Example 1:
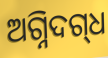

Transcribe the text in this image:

ଅଗ୍ନିଦଗ୍‌ଧ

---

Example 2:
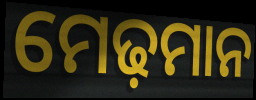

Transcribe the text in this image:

ମେଢ଼ମାନ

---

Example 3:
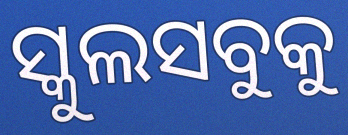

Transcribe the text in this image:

ସ୍କୁଲସବୁକୁ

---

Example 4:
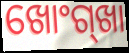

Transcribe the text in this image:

ଖୋଂଗ୍‍ଖା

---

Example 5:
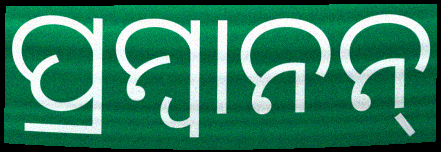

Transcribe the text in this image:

ପ୍ରମ୍ବାନନ୍